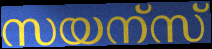
സയന്സ്